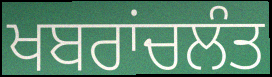
ਖਬਰਾਂਚਲੰਤ